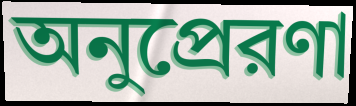
অনুপ্রেরণা